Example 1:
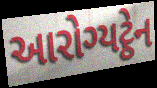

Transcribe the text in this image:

આરોગ્યટ્ઠેન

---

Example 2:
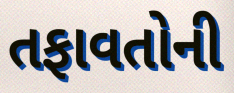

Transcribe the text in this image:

તફાવતોની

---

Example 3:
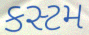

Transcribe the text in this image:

કસ્ટમ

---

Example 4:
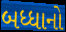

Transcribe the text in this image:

બધ્ધાનો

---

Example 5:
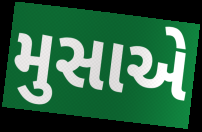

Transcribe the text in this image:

મુસાએ